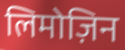
लिमोज़िन